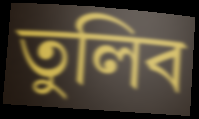
তুলিব